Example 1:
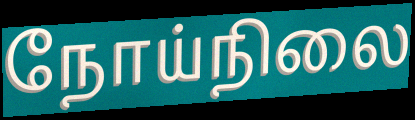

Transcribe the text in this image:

நோய்நிலை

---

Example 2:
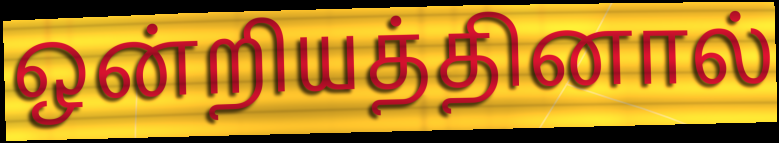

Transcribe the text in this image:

ஒன்றியத்தினால்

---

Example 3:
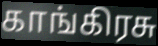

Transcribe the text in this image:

காங்கிரசு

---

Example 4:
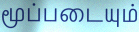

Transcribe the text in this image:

மூப்படையும்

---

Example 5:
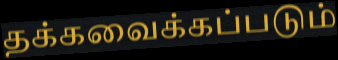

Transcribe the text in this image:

தக்கவைக்கப்படும்